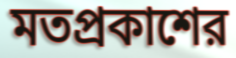
মতপ্রকাশের